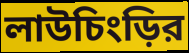
লাউচিংড়ির